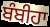
ਬੰਬੀਹਾ